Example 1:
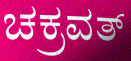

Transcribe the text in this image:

ಚಕ್ರವತ್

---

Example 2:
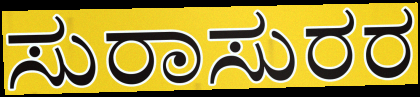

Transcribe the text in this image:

ಸುರಾಸುರರ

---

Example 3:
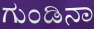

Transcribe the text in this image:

ಗುಂಡಿನಾ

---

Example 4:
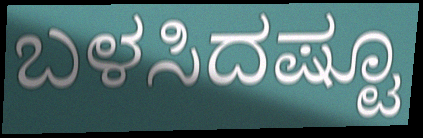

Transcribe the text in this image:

ಬಳಸಿದಷ್ಟೂ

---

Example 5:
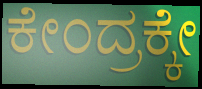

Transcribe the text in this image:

ಕೇಂದ್ರಕ್ಕೇ